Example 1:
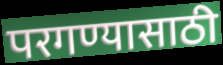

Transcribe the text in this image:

परगण्यासाठी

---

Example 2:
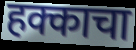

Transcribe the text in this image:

हक्काचा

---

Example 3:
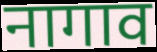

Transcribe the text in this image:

नागाव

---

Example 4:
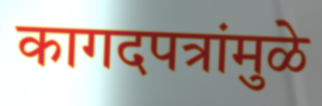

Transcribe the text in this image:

कागदपत्रांमुळे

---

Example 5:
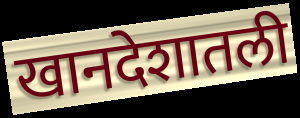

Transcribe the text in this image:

खानदेशातली